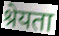
श्रेयता